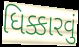
ધિક્કારવું